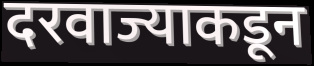
दरवाज्याकडून